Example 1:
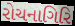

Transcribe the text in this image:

રોચનાગિરિ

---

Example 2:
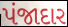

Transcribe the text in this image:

પંજાદાર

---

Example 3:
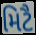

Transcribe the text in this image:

મિટૈ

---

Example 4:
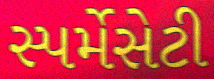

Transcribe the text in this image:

સ્પર્મેસેટી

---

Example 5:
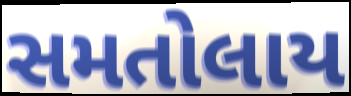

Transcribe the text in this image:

સમતોલાય